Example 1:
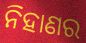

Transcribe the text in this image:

ନିହାଣର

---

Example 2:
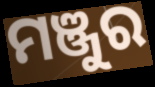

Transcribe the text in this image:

ମଞ୍ଜୁର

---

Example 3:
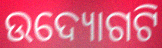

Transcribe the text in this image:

ଉଦ୍ୟୋଗଟି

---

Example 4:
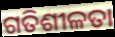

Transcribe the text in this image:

ଗତିଶୀଳତା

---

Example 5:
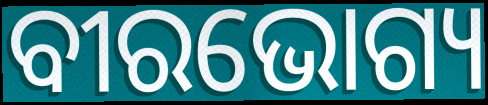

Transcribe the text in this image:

ବୀରଭୋଗ୍ୟ